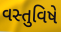
વસ્તુવિષે